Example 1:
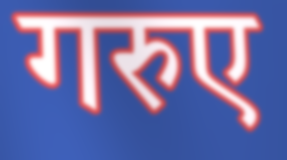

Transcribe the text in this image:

गरुए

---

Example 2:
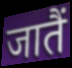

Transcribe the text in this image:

जातैं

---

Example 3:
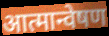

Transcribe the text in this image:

आत्मान्वेषण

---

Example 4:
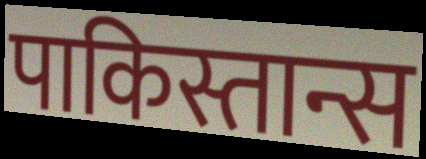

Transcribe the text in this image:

पाकिस्तान्स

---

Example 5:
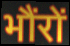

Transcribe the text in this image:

भौंरों